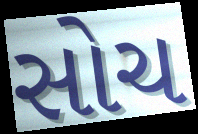
સોચ